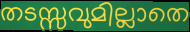
തടസ്സവുമില്ലാതെ